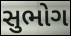
સુભોગ